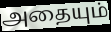
அதையும்